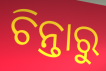
ଚିନ୍ତାରୁ